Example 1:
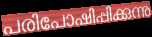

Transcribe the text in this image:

പരിപോഷിപ്പിക്കുന്നു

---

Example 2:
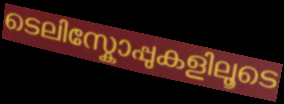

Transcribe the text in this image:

ടെലിസ്കോപ്പുകളിലൂടെ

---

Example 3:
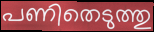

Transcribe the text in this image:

പണിതെടുത്തു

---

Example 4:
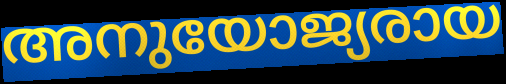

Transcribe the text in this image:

അനുയോജ്യരായ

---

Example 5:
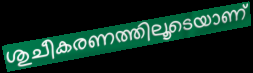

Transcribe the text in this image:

ശുചീകരണത്തിലൂടെയാണ്